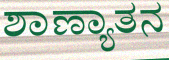
ಶಾಣ್ಯಾತನ